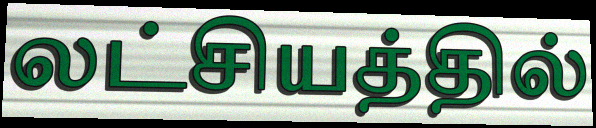
லட்சியத்தில்